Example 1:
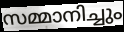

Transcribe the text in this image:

സമ്മാനിച്ചും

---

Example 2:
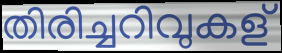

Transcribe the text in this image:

തിരിച്ചറിവുകള്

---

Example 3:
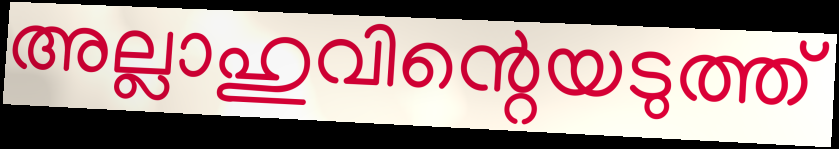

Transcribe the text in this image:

അല്ലാഹുവിന്റെയടുത്ത്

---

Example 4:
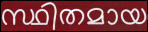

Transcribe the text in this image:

സ്ഥിതമായ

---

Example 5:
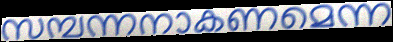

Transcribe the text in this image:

സമ്പന്നനാകണമെന്ന